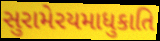
સુરામેરયમાધુકાતિ